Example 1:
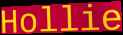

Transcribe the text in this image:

Hollie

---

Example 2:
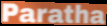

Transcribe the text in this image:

Paratha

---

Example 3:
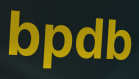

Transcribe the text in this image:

bpdb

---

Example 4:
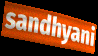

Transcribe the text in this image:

sandhyani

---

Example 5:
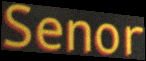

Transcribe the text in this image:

Senor